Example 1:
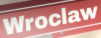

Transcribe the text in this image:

Wroclaw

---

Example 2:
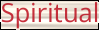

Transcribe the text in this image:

Spiritual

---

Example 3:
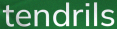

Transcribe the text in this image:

tendrils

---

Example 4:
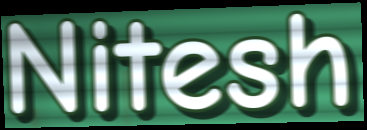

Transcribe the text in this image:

Nitesh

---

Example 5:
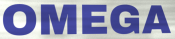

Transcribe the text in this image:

OMEGA